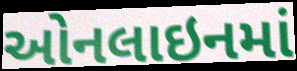
ઓનલાઇનમાં